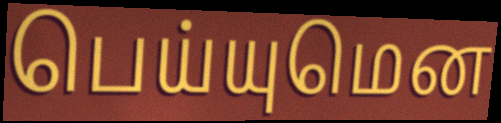
பெய்யுமென